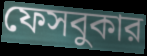
ফেসবুকার